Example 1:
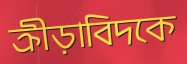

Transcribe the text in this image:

ক্রীড়াবিদকে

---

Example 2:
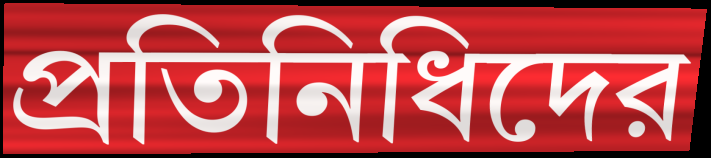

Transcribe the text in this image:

প্রতিনিধিদের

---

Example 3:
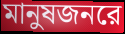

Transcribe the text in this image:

মানুষজনরে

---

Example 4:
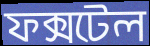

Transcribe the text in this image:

ফক্সটেল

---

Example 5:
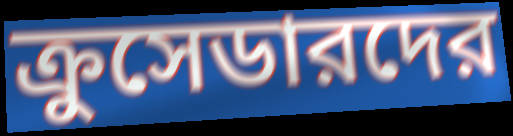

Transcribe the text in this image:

ক্রুসেডারদের